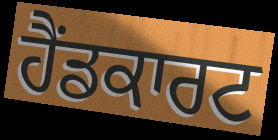
ਹੈਂਡਕਾਰਟ